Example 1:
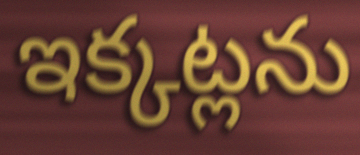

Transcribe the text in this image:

ఇక్కట్లను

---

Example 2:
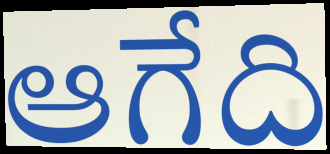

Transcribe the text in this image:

ఆగేది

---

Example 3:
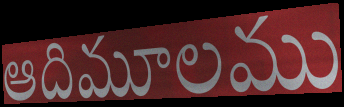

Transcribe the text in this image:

ఆదిమూలము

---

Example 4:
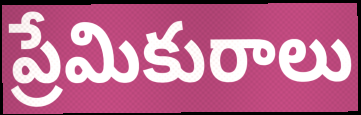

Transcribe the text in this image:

ప్రేమికురాలు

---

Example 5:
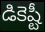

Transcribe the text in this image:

డికెష్టీ